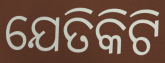
ଯେତିକିଟି